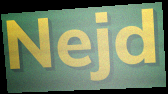
Nejd